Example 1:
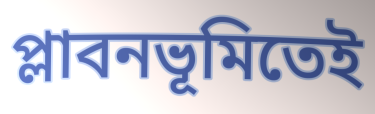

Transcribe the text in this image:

প্লাবনভূমিতেই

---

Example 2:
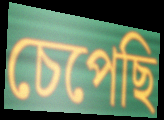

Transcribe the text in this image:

চেপেছি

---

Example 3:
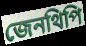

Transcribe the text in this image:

জেনথিপি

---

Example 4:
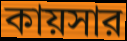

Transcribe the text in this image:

কায়সার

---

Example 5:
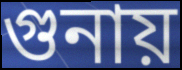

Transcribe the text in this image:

গুনায়